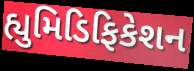
હ્યુમિડિફિકેશન